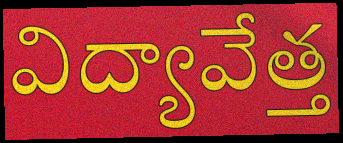
విద్యావేత్త